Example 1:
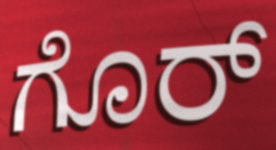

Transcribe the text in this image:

ಗೊರ್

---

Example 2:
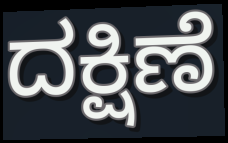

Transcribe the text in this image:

ದಕ್ಷಿಣೆ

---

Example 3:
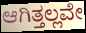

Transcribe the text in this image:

ಆಗಿತ್ತಲ್ಲವೇ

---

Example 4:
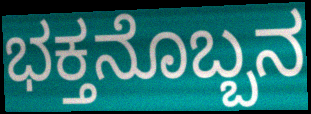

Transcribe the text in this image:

ಭಕ್ತನೊಬ್ಬನ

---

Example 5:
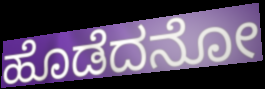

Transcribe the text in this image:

ಹೊಡೆದನೋ